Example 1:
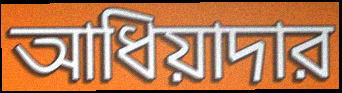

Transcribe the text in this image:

আধিয়াদার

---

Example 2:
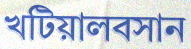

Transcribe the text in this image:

খটিয়ালবসান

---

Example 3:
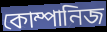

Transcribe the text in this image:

কোম্পানিজ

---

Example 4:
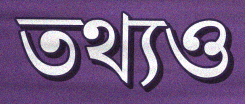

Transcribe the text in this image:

তথ্যও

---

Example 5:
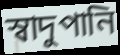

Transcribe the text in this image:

স্বাদুপানি